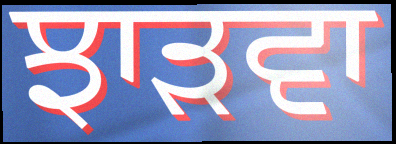
ਝਾੜਵਾ